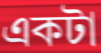
একটা